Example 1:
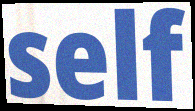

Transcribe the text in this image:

self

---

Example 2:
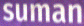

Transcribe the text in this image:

suman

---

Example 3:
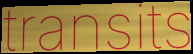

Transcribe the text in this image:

transits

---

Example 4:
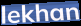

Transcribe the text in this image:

lekhan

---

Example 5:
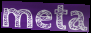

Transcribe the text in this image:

meta